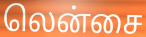
லென்சை